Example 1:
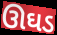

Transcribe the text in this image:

ઊઘડ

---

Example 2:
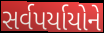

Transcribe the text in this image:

સર્વપર્યાયોને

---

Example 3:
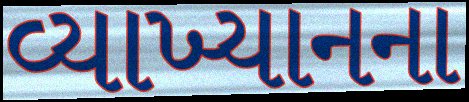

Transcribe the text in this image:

વ્યાખ્યાનના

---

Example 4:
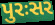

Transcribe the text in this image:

પુરઃસર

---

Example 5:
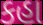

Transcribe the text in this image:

કહા